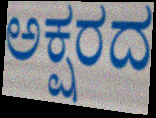
ಅಕ್ಷರದ